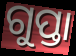
ଗୁପ୍ତା